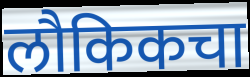
लौकिकचा